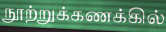
நூற்றுக்கணக்கில்